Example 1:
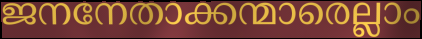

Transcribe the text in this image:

ജനനേതാക്കന്മാരെല്ലാം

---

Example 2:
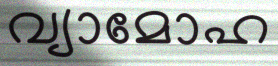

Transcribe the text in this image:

വ്യാമോഹ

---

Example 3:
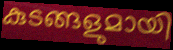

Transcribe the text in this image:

കുടങ്ങളുമായി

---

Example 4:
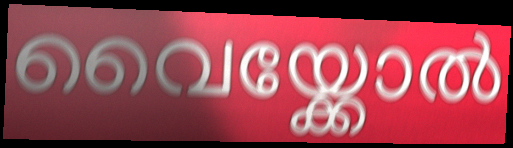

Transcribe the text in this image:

വൈയ്ക്കോൽ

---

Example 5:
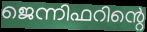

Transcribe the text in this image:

ജെന്നിഫറിന്റെ